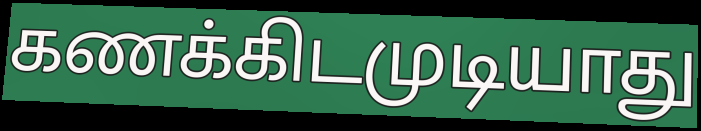
கணக்கிடமுடியாது